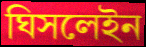
ঘিসলেইন